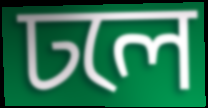
ঢলে